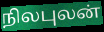
நிலபுலன்